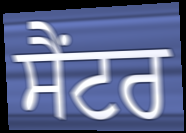
ਸੈਂਟਰ